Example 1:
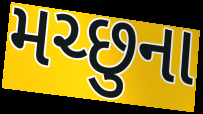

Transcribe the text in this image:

મચ્છુના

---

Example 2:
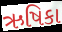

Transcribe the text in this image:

ઋષિકા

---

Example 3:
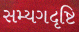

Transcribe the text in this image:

સમ્યગદૃષ્ટિ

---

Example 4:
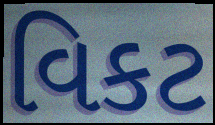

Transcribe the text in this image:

વિકટ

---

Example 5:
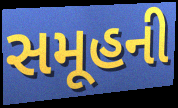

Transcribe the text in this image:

સમૂહની